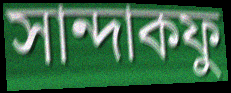
সান্দাকফু